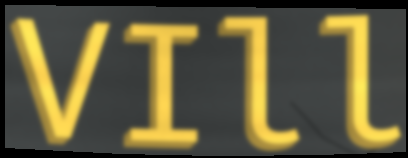
VIll